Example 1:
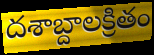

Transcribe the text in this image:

దశాబ్దాలక్రితం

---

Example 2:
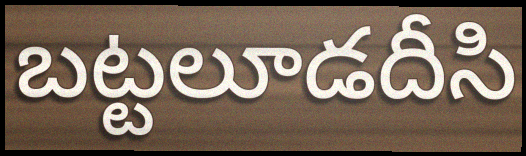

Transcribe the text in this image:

బట్టలూడదీసి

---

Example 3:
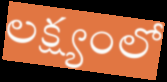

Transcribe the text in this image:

లక్ష్యంలో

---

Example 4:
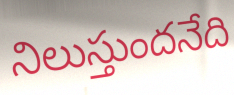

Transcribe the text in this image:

నిలుస్తుందనేది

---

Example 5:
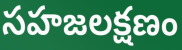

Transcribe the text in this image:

సహజలక్షణం